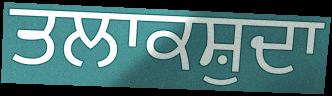
ਤਲਾਕਸ਼ੁਦਾ